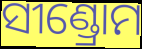
ସୀଣ୍ଡ୍ରୋମ